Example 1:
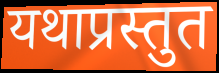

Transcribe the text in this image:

यथाप्रस्तुत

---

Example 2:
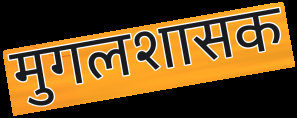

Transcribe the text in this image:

मुगलशासक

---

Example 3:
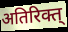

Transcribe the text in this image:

अतिरिक्त्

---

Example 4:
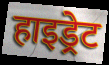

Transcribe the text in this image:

हाइड्रेट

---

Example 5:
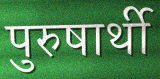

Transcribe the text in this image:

पुरुषार्थी